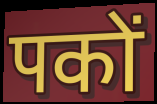
पकों